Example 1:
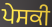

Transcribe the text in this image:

ਪੇਸਕੀ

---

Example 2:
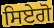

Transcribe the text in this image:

ਸਿਏਗੋ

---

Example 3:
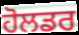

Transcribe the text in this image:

ਹੋਲਡਰ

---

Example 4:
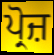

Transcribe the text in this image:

ਪ੍ਰੋਜ਼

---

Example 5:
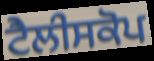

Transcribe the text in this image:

ਟੈਲੀਸਕੋਪ